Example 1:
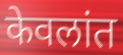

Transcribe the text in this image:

केवलांत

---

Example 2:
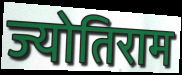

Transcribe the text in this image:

ज्योतिराम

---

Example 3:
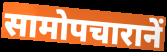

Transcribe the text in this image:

सामोपचारानें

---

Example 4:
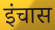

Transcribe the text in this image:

इंचास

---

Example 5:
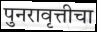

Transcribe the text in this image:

पुनरावृत्तीचा